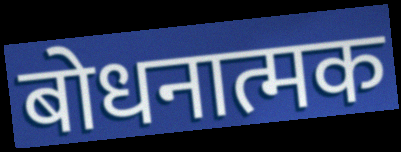
बोधनात्मक